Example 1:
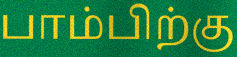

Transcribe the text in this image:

பாம்பிற்கு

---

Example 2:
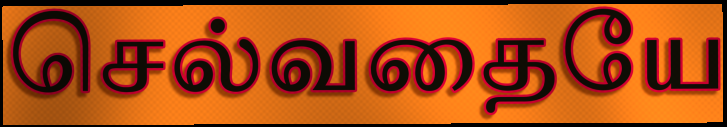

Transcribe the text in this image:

செல்வதையே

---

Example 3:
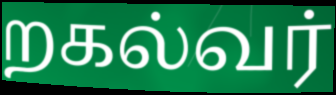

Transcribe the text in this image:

றகல்வர்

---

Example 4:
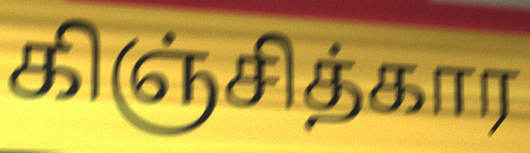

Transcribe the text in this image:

கிஞ்சித்கார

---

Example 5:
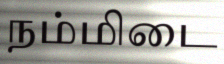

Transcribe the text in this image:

நம்மிடை